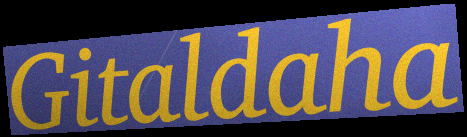
Gitaldaha